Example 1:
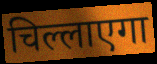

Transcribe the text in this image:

चिल्लाएगा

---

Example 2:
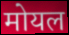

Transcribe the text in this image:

मोयल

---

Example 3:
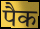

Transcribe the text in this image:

पैक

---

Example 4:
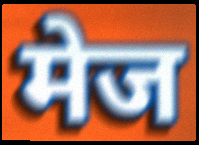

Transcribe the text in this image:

मेज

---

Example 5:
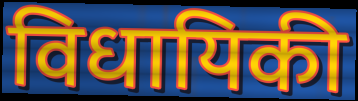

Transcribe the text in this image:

विधायिकी